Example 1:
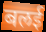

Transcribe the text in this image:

बलई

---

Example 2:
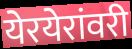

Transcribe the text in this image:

येरयेरांवरी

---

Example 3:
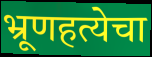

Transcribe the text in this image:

भ्रूणहत्येचा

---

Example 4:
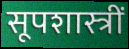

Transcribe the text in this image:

सूपशास्त्रीं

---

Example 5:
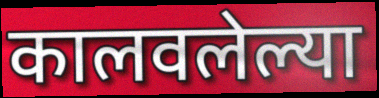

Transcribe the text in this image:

कालवलेल्या